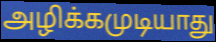
அழிக்கமுடியாது